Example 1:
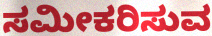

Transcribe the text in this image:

ಸಮೀಕರಿಸುವ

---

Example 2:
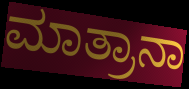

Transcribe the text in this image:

ಮಾತ್ರಾನಾ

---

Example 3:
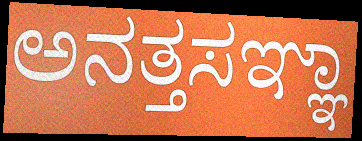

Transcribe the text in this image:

ಅನತ್ತಸಞ್ಞಾ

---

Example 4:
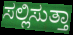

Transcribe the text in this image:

ಸಲ್ಲಿಸುತ್ತಾ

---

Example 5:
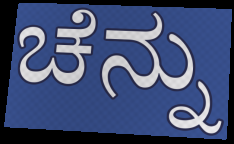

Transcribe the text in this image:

ಚೆನ್ನು